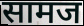
सामज